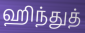
ஹிந்துத்